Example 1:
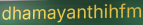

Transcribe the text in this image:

dhamayanthihfm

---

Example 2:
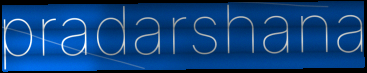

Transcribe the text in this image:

pradarshana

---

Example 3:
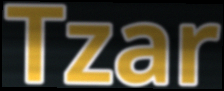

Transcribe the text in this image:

Tzar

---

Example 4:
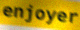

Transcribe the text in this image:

enjoyer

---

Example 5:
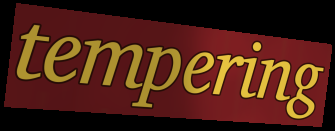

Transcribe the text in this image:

tempering